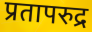
प्रतापरुद्र